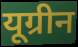
यूग्रीन